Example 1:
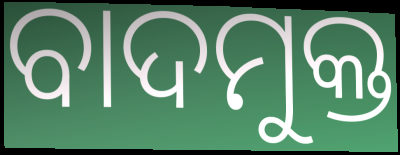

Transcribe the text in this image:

ବାଦମୁକ୍ତ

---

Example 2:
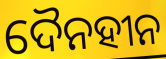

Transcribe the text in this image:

ଦୈନହୀନ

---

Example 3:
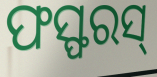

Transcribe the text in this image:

ଫସ୍ଫରସ୍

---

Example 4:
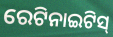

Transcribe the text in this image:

ରେଟିନାଇଟିସ୍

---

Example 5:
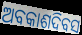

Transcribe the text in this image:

ଅବକାଶଦିବସ